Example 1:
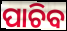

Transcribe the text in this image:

ପାଚିବ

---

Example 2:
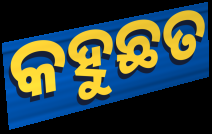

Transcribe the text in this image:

କହୁଛତ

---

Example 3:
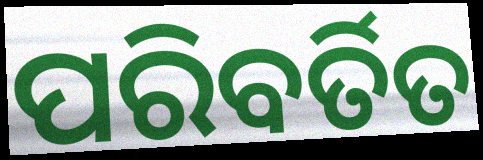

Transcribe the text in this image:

ପରିବର୍ତିତ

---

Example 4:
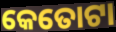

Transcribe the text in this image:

କେତୋଟା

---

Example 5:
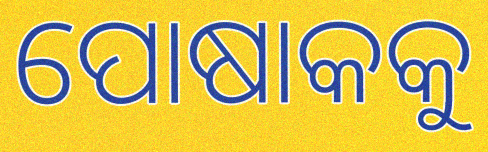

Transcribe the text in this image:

ପୋଷାକକୁ